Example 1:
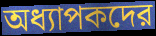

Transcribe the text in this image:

অধ্যাপকদের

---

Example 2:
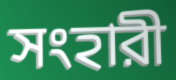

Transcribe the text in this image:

সংহারী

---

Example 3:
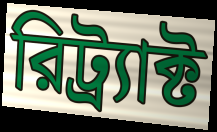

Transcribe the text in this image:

রিট্র্যাক্ট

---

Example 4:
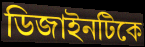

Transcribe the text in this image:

ডিজাইনটিকে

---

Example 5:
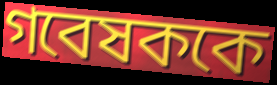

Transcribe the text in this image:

গবেষককে